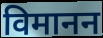
विमानन